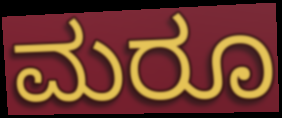
ಮರೂ